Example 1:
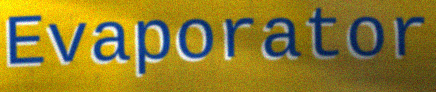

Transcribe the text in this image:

Evaporator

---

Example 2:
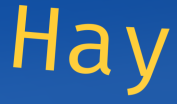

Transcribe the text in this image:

Hay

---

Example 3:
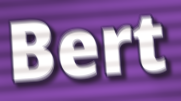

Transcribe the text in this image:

Bert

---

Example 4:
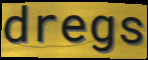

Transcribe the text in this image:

dregs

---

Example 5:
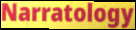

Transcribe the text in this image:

Narratology